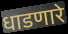
धाडणारे